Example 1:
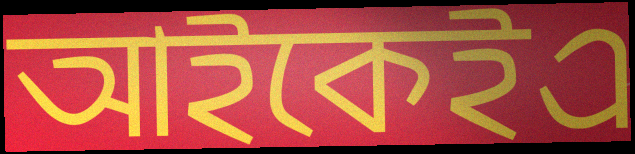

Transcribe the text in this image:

আইকেইএ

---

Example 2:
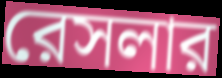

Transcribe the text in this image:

রেসলার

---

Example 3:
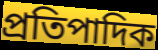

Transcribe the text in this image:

প্রতিপাদিক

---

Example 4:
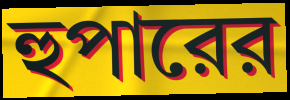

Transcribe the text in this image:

হুপারের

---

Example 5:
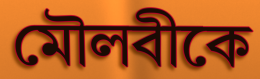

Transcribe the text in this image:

মৌলবীকে